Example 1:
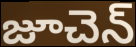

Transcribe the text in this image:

జూచెన్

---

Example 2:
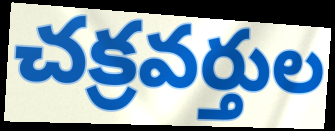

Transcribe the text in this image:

చక్రవర్తుల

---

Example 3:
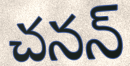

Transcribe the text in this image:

చనన్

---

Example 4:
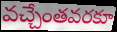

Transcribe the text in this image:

వచ్చేంతవరకూ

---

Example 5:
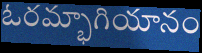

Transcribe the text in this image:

ఓరమ్భాగియానం